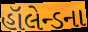
હૉલેન્ડના